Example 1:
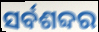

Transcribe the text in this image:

ସର୍ବଶବ୍ଦର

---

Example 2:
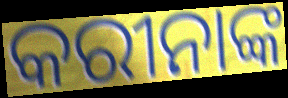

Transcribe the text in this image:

କରୀନାଙ୍କ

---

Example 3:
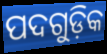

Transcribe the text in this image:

ପଦଗୁଡ଼ିକ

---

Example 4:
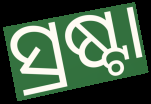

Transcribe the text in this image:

ସ୍ରଷ୍ଟା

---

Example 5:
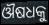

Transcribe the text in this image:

ଔଷଧକୁ